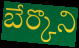
బేర్కొని